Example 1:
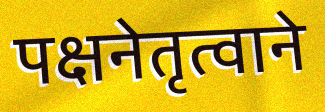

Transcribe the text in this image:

पक्षनेतृत्वाने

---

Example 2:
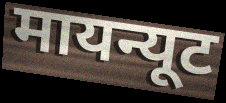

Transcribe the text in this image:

मायन्यूट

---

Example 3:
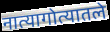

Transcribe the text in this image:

नात्यागोत्यातले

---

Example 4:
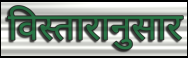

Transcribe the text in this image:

विस्तारानुसार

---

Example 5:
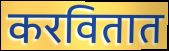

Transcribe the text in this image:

करवितात